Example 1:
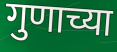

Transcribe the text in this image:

गुणाच्या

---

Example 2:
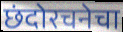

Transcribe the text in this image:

छंदोरचनेचा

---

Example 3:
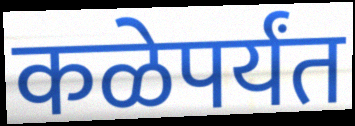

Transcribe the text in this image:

कळेपर्यंत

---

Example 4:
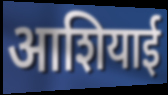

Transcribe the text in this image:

आशियाई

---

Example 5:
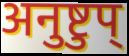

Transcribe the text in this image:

अनुष्टुप्